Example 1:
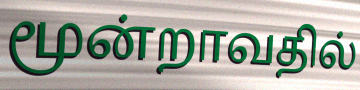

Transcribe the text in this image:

மூன்றாவதில்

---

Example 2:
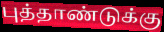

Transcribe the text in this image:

புத்தாண்டுக்கு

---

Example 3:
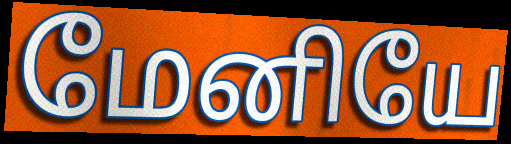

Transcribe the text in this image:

மேனியே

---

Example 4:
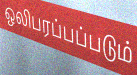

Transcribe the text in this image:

ஒலிபரப்பப்படும்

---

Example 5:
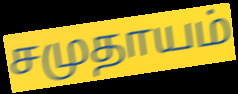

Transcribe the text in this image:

சமுதாயம்